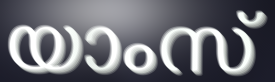
യാംസ്